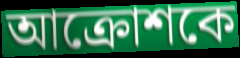
আক্রোশকে